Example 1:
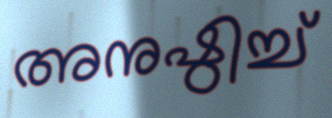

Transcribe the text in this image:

അനുഷ്ഠിച്ച്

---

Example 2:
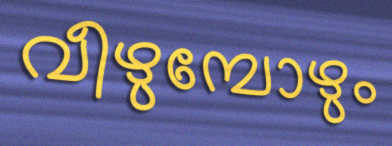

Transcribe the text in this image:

വീഴുമ്പോഴും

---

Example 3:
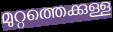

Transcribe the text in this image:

മുറ്റത്തെക്കുള്ള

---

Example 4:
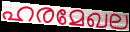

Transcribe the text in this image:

ഹരമേഖല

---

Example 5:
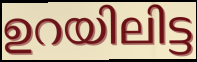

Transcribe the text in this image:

ഉറയിലിട്ട